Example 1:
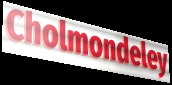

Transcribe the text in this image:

Cholmondeley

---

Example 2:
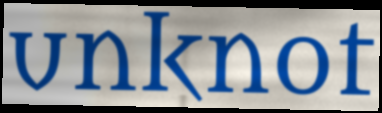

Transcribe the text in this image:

unknot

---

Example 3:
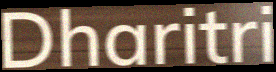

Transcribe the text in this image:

Dharitri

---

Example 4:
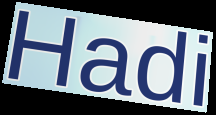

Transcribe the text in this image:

Hadi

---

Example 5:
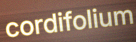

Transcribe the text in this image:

cordifolium